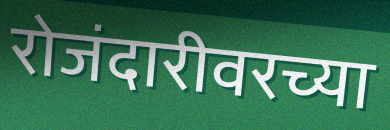
रोजंदारीवरच्या